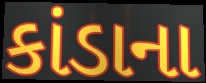
કાંડાના